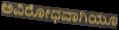
ಅವಿರೋಧವಾಗಿಯೂ